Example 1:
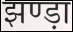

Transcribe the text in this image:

झण्ड़ा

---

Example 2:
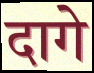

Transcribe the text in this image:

दागे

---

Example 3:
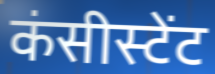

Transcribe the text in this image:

कंसीस्टेंट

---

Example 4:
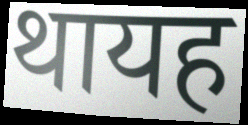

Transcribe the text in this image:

थायह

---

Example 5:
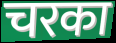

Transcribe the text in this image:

चरका